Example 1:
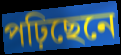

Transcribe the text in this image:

পঢ়িছেনে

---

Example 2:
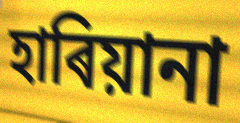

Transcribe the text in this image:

হাৰিয়ানা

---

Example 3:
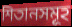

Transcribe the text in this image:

শিতানসমূহ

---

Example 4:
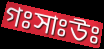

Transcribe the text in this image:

গঃসাঃউঃ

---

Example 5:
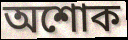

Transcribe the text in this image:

অশোক